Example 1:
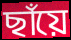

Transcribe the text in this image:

ছাঁয়ে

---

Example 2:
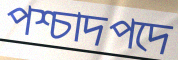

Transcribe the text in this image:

পশ্চাদপদে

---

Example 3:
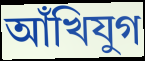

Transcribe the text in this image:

আঁখিযুগ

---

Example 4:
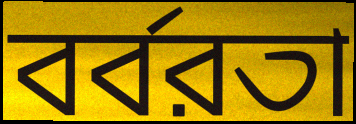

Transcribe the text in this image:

বর্বরতা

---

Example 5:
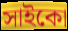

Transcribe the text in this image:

সাইকো